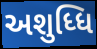
અશુધ્ધિ